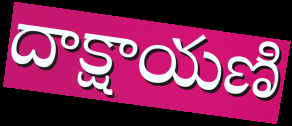
దాక్షాయణి